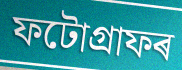
ফটোগ্ৰাফৰ